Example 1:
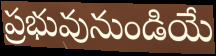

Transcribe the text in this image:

ప్రభువునుండియే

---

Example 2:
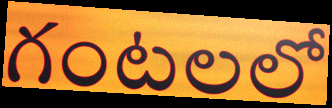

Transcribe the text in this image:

గంటలలో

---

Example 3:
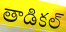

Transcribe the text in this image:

తాడికల్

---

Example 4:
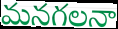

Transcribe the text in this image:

మనగలనా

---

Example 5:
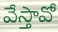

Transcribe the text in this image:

వేస్తావో